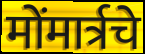
मोंमार्त्रचे